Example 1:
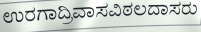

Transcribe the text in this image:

ಉರಗಾದ್ರಿವಾಸವಿಠಲದಾಸರು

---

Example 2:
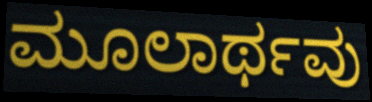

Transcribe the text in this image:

ಮೂಲಾರ್ಥವು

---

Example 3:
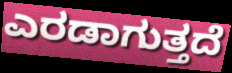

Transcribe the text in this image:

ಎರಡಾಗುತ್ತದೆ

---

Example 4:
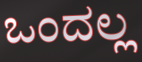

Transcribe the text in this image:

ಒಂದಲ್ಲ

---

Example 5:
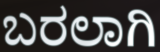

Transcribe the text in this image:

ಬರಲಾಗಿ